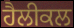
ਹੈਲੀਕਲ